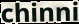
chinni